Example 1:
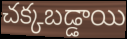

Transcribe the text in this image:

చక్కబడ్డాయి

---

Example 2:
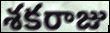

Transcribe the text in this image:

శకరాజు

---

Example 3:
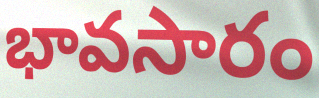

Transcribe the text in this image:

భావసారం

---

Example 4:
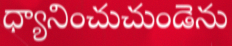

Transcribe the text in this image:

ధ్యానించుచుండెను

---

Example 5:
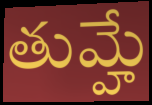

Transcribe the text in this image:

తుమ్హే